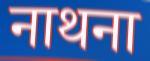
नाथना